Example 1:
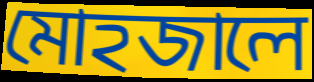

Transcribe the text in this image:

মোহজালে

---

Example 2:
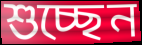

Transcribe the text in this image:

শুচ্ছেন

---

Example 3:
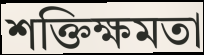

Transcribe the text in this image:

শক্তিক্ষমতা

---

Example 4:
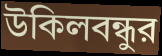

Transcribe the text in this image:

উকিলবন্ধুর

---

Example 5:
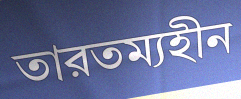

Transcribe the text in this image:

তারতম্যহীন